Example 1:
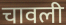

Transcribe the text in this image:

चावली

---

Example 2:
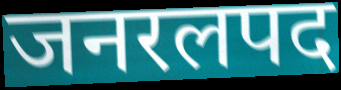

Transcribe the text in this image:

जनरलपद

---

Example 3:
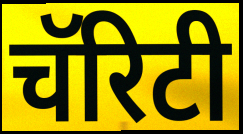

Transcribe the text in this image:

चॅरिटी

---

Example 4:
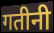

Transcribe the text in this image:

गतीनी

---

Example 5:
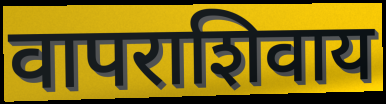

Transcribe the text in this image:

वापराशिवाय